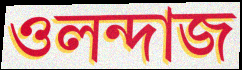
ওলন্দাজ